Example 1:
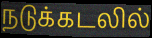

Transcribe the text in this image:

நடுக்கடலில்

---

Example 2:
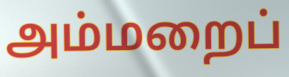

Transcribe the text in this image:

அம்மறைப்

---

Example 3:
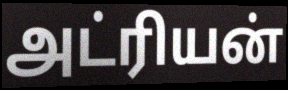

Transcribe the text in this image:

அட்ரியன்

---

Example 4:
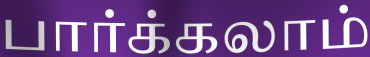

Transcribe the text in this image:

பார்க்கலாம்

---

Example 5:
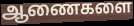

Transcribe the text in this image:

ஆணைகளை